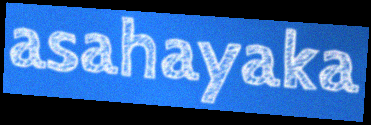
asahayaka